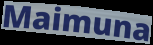
Maimuna